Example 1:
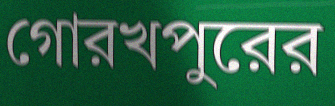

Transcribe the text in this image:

গোরখপুরের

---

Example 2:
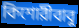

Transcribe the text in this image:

কিশোরীবাবু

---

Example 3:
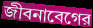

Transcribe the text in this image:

জীবনাবেগের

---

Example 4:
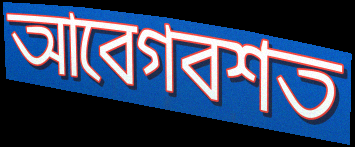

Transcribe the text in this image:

আবেগবশত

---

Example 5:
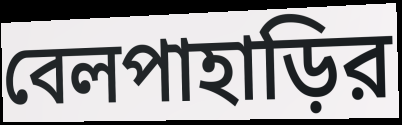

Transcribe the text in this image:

বেলপাহাড়ির